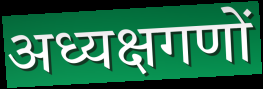
अध्यक्षगणों